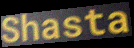
Shasta